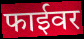
फाईवर